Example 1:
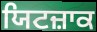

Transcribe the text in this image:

ਯਿਟਜ਼ਾਕ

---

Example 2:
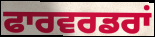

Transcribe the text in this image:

ਫਾਰਵਰਡਰਾਂ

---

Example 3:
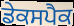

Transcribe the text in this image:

ਡੇਕਸਪੈਕ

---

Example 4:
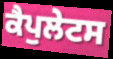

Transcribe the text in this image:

ਕੈਪੁਲੇਟਸ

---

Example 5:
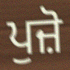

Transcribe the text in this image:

ਪੁਜ਼ੋ